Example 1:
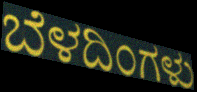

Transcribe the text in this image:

ಬೆಳದಿಂಗಳು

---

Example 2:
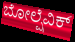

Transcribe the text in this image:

ಬೋಲ್ಷೆವಿಕ್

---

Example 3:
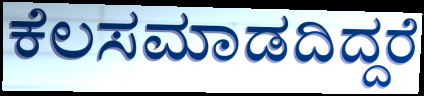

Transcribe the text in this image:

ಕೆಲಸಮಾಡದಿದ್ದರೆ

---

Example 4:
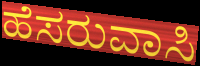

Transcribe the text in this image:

ಹೆಸರುವಾಸಿ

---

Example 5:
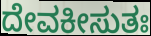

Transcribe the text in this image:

ದೇವಕೀಸುತಃ